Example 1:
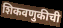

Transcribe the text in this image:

शिकवणुकीची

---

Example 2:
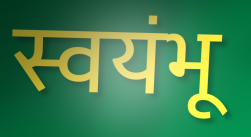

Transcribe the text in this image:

स्वयंभू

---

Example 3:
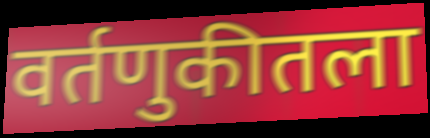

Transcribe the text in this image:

वर्तणुकीतला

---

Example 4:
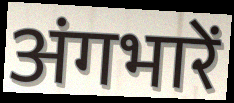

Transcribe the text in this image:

अंगभारें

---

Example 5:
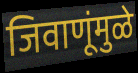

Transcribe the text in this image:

जिवाणूंमुळे